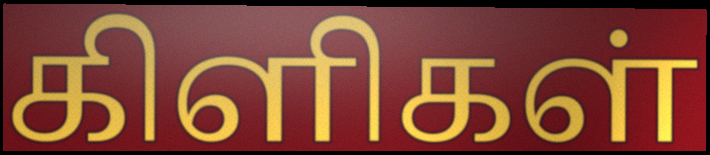
கிளிகள்